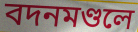
বদনমণ্ডলে